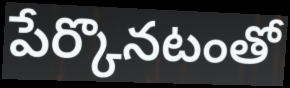
పేర్కొనటంతో